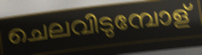
ചെലവിടുമ്പോള്